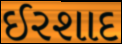
ઈરશાદ